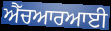
ਐੱਚਆਰਆਈ